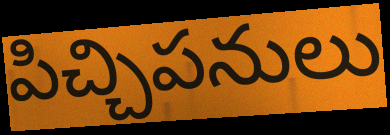
పిచ్చిపనులు